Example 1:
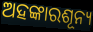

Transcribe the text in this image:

ଅହଙ୍କାରଶୂନ୍ୟ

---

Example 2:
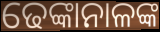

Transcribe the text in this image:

ଢେଙ୍କାନାଳଙ୍କ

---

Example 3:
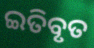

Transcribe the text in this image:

ଇତିବୃତ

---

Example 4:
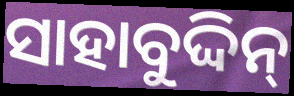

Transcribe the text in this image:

ସାହାବୁଦ୍ଦିନ୍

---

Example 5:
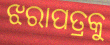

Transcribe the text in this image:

ଝରାପତ୍ରକୁ